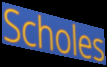
Scholes